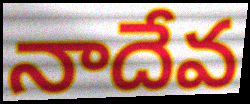
నాదేవ